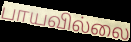
பாயவில்லை